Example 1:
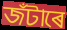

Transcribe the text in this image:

জঁটাৰে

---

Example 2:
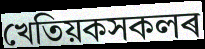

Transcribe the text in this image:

খেতিয়কসকলৰ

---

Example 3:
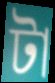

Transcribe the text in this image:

টা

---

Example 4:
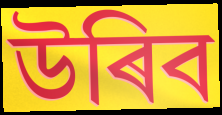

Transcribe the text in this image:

উৰিব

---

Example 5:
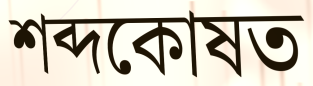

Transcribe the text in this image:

শব্দকোষত